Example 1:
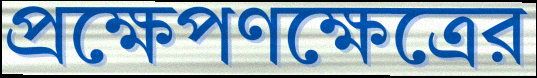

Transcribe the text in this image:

প্রক্ষেপণক্ষেত্রের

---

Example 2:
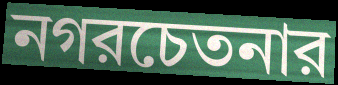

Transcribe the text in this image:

নগরচেতনার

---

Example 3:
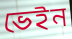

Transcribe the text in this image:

ভেইন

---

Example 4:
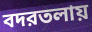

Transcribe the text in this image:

বদরতলায়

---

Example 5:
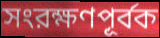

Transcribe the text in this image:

সংরক্ষণপূর্বক